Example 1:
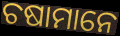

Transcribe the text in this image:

ଚଷାମାନେ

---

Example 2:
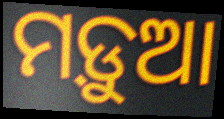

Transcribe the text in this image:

ମଡ଼ୁଆ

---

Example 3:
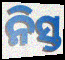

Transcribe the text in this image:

ନିସ୍ତ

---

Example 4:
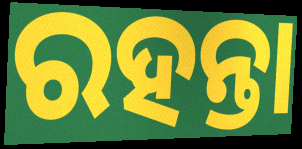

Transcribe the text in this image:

ରହନ୍ତା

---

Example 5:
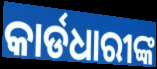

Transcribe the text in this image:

କାର୍ଡଧାରୀଙ୍କ